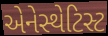
એનેસ્થેટિસ્ટ